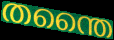
തന്തൈ